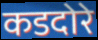
कडदोरे